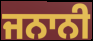
ਜਨਾਨੀ